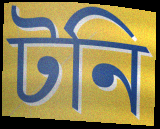
টনি